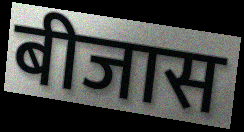
बीजास